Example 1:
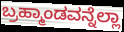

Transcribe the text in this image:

ಬ್ರಹ್ಮಾಂಡವನ್ನೆಲ್ಲಾ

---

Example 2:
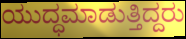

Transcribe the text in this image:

ಯುದ್ಧಮಾಡುತ್ತಿದ್ದರು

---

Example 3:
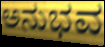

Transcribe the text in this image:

ಅನುಭವ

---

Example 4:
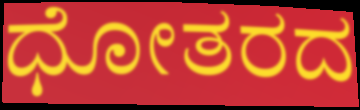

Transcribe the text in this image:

ಧೋತರದ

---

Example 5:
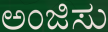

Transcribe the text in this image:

ಅಂಜಿಸು